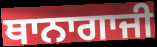
ਥਾਨਾਗਾਜੀ